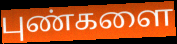
புண்களை